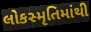
લોકસ્મૃતિમાંથી